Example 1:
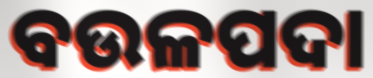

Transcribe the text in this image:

ବଉଳପଦା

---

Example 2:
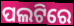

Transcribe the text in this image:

ପଲଟିରେ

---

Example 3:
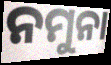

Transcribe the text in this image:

ନମୁନା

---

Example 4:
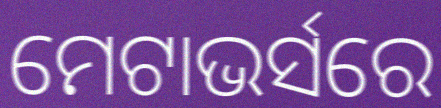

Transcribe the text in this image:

ମେଟାଭର୍ସରେ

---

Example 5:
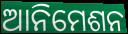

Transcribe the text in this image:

ଆନିମେଶନ